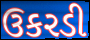
ઉકરડી